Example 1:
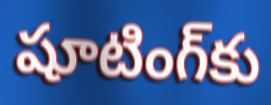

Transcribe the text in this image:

షూటింగ్‌కు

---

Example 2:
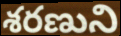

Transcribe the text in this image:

శరణుని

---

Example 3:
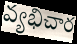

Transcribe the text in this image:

వ్యభిచార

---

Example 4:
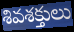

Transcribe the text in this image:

శివశక్తులు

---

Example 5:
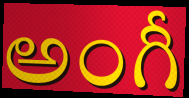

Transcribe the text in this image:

అంగీ